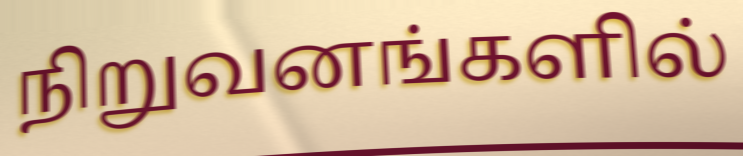
நிறுவனங்களில்